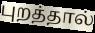
புறத்தால்